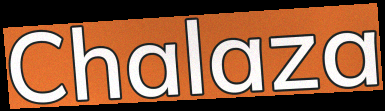
Chalaza